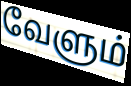
வேளும்